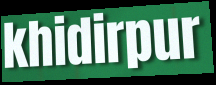
khidirpur